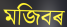
মজিবৰ